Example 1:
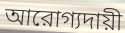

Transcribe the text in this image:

আরোগ্যদায়ী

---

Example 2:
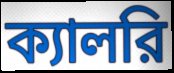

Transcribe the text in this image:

ক্যালরি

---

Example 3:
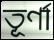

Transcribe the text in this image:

তূর্ণা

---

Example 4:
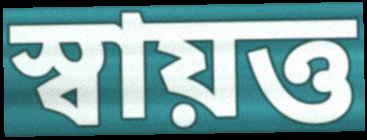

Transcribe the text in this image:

স্বায়ত্ত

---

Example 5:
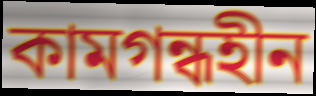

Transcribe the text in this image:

কামগন্ধহীন